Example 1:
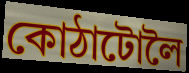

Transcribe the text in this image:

কোঠাটোলৈ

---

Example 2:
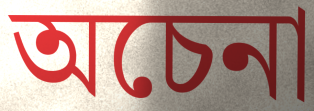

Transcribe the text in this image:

অচেনা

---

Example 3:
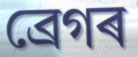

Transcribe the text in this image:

ব্ৰেগৰ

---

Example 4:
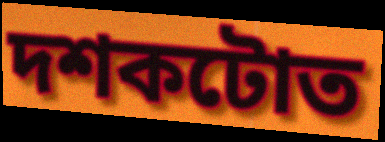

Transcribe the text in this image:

দশকটোত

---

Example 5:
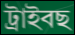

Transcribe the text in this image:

ট্ৰাইবছ